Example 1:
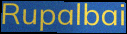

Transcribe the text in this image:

Rupalbai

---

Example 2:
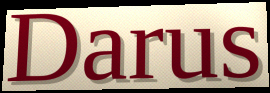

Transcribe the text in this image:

Darus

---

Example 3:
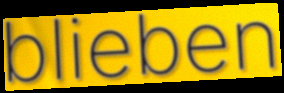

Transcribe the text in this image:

blieben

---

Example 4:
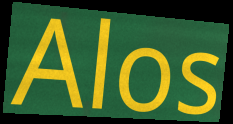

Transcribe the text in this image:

Alos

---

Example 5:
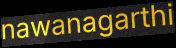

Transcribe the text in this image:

nawanagarthi